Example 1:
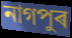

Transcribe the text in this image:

নাগপুৰ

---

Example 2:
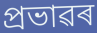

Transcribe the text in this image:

প্ৰভাৱৰ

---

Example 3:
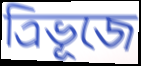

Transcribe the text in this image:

ত্ৰিভূজে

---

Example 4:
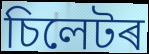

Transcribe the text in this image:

চিলেটৰ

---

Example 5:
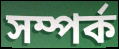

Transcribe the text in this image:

সম্পৰ্ক